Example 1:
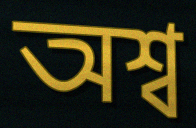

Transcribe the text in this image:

অশ্ব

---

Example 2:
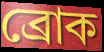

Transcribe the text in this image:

ব্রোক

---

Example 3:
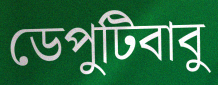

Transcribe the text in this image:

ডেপুটিবাবু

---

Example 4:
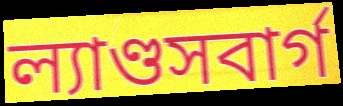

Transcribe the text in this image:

ল্যাণ্ডসবার্গ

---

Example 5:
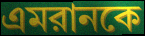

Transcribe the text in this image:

এমরানকে